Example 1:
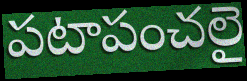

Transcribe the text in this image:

పటాపంచలై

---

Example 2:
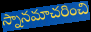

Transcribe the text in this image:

స్నానమాచరించి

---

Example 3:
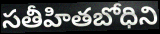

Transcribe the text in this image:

సతీహితబోధిని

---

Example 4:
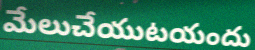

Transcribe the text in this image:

మేలుచేయుటయందు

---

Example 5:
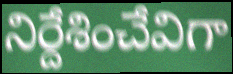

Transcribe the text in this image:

నిర్దేశించేవిగా